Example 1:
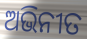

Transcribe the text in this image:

ଅଭିନୀତ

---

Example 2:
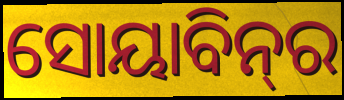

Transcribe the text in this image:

ସୋୟାବିନ୍‌ର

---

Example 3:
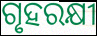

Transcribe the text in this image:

ଗୃହରକ୍ଷୀ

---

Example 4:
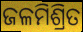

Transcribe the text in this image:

ଜଳମିଶ୍ରିତ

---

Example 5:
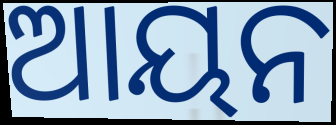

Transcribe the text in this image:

ଆୟନ